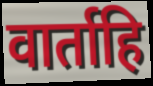
वार्ताहि